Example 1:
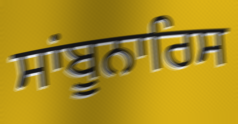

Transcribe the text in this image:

ਸਾਂਬੂਨਾਰਿਸ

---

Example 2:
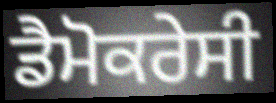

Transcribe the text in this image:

ਡੈਮੋਕਰੇਸੀ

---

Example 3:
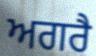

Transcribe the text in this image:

ਅਗਰੈ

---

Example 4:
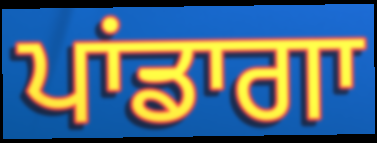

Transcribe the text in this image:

ਪਾਂਡਾਗਾ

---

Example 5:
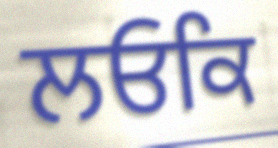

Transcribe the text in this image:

ਲਓਕਿ